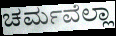
ಚರ್ಮವೆಲ್ಲಾ